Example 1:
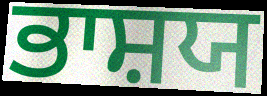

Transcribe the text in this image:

ਭਾਸ਼ਯ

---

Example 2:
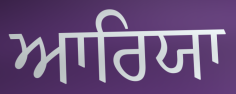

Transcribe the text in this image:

ਆਰਿਯਾ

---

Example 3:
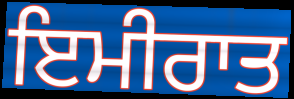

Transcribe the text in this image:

ਇਮੀਰਾਤ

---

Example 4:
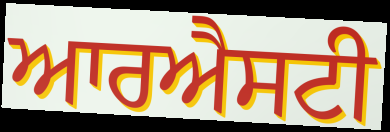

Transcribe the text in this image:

ਆਰਐਸਟੀ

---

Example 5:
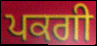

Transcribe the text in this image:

ਪਕਗੀ